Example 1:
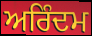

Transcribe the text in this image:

ਅਰਿੰਦਮ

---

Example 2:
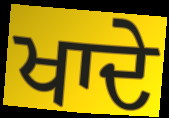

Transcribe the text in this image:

ਖਾਦੇ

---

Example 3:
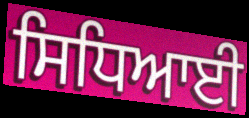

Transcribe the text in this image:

ਸਿਧਿਆਈ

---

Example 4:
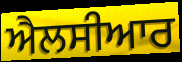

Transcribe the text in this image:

ਐਲਸੀਆਰ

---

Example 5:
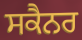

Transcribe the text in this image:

ਸਕੈਨਰ